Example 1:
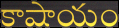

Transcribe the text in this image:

కాషాయం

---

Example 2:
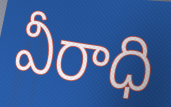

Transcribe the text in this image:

వీరాధి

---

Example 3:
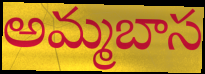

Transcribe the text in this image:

అమ్మబాస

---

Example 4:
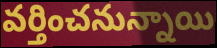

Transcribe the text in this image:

వర్తించనున్నాయి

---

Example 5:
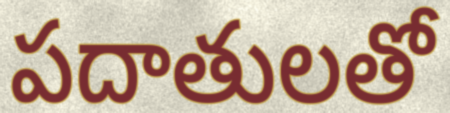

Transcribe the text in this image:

పదాతులతో